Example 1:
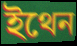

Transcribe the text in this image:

ইথেন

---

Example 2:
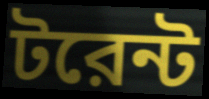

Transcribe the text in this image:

টরেন্ট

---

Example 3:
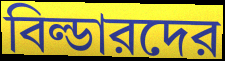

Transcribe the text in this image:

বিল্ডারদের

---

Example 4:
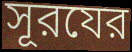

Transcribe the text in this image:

সূরযের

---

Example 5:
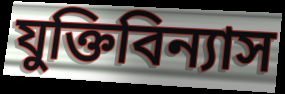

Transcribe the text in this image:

যুক্তিবিন্যাস